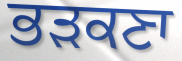
ਭੜਕਣਾ